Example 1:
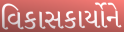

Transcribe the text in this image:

વિકાસકાર્યોને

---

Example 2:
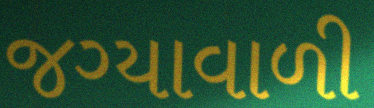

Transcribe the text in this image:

જગ્યાવાળી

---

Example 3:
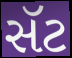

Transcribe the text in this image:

સૅટ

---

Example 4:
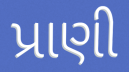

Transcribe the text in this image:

પ્રાણી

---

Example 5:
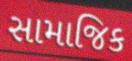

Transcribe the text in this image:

સામાજિક